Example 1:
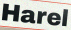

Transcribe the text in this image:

Harel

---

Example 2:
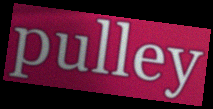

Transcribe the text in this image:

pulley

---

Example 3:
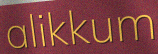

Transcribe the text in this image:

alikkum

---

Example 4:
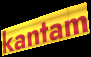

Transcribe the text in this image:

kantam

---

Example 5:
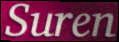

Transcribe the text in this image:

Suren